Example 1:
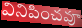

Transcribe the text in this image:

వినిపించవూ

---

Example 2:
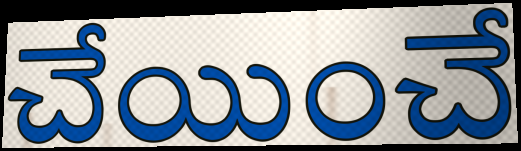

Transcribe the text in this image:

చేయించే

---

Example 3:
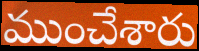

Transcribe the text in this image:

ముంచేశారు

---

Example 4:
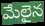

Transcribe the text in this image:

మేలైన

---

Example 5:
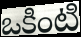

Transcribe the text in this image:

ఒకింటి